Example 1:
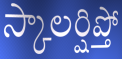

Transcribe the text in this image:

స్కాలర్షిప్తో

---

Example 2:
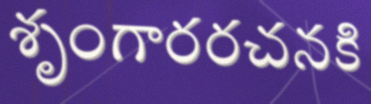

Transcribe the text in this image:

శృంగారరచనకి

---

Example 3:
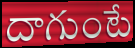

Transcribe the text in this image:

దాగుంటే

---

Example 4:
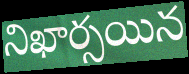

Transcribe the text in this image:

నిఖార్సయిన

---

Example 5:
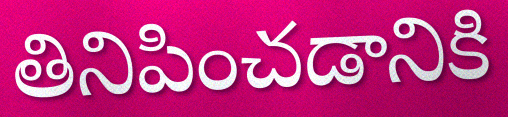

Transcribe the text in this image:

తినిపించడానికి